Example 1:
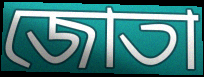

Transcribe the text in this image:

জোতা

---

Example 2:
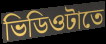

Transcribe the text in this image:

ভিডিওটাতে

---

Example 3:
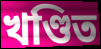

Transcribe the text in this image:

খণ্ডিত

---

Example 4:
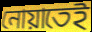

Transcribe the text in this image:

নোয়াতেই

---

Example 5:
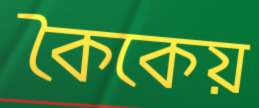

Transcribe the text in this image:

কৈকেয়